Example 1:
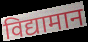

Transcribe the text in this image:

विद्यामान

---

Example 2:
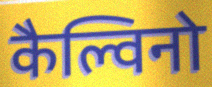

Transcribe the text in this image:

कैल्विनो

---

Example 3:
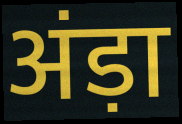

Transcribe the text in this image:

अंड़ा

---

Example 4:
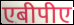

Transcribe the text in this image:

एबीपीए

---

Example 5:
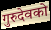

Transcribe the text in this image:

गुरुदेवको